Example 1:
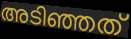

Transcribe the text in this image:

അടിഞ്ഞത്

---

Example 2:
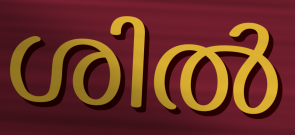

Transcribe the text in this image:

ശിൽ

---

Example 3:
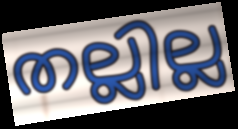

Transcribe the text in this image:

തല്ലില്ല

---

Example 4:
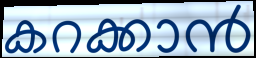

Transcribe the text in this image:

കറക്കാൻ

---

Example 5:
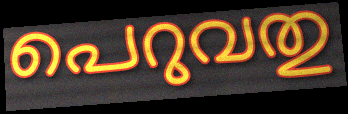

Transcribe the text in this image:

പെറുവതു